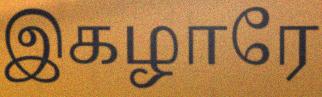
இகழாரே